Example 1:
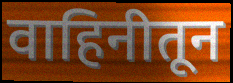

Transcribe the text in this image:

वाहिनीतून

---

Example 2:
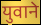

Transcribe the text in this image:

युवाने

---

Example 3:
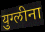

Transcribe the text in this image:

युग्लीना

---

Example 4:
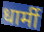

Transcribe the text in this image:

धार्मी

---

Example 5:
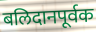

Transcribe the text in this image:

बलिदानपूर्वक